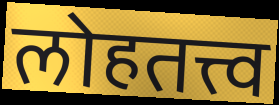
लोहतत्त्व